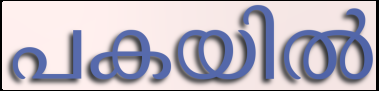
പകയിൽ